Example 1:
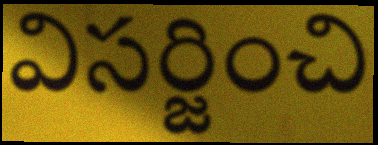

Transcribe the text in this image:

విసర్జించి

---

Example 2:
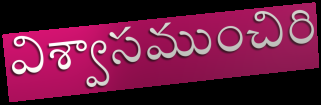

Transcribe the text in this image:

విశ్వాసముంచిరి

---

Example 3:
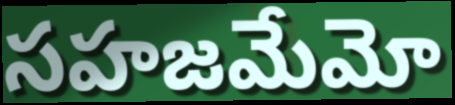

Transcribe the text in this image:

సహజమేమో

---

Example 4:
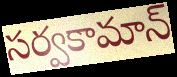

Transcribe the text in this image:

సర్వకామాన్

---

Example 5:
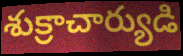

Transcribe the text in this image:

శుక్రాచార్యుడి